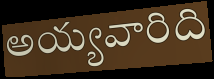
అయ్యవారిది